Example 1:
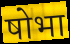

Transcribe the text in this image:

षोभा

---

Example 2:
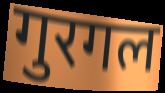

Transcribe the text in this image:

गुरगल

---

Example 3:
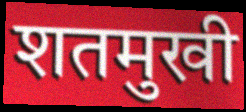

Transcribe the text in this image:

शतमुखी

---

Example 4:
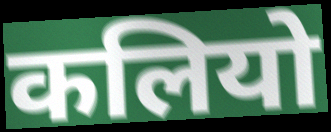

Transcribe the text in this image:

कलियो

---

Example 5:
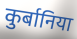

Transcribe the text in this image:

कुर्बानिया